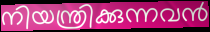
നിയന്ത്രിക്കുന്നവൻ